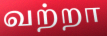
வற்றா